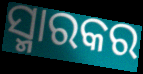
ସ୍ମାରକର